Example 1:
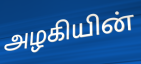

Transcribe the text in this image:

அழகியின்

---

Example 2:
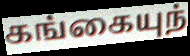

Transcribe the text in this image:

கங்கையுந்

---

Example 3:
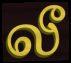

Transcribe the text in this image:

லீ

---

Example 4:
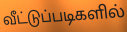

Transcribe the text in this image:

வீட்டுப்படிகளில்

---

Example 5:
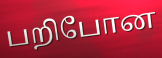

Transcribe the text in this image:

பறிபோன